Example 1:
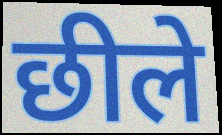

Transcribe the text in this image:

छीले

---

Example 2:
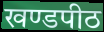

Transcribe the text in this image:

खण्डपीठ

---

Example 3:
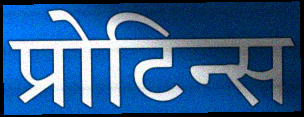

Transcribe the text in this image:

प्रोटिन्स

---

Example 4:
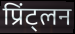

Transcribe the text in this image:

प्रिंट्लन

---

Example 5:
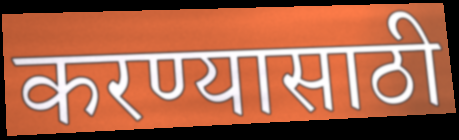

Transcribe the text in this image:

करण्यासाठी